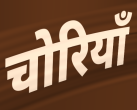
चोरियाँ